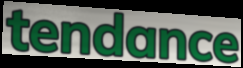
tendance